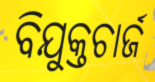
ବିଯୁକ୍ତଚାର୍ଜ